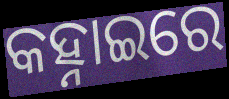
କହ୍ନାଇରେ